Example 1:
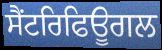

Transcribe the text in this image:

ਸੈਂਟਰਿਫਿਊਗਲ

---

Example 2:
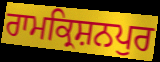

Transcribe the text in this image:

ਰਾਮਕ੍ਰਿਸ਼ਨਪੁਰ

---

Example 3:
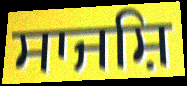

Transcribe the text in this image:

ਸਾਜਸ਼ਿ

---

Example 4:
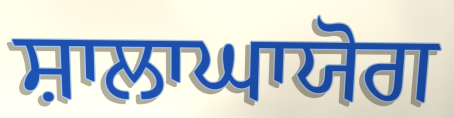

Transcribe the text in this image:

ਸ਼ਾਲਾਘਾਯੋਗ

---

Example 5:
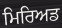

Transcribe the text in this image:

ਮਿਰਿਅਡ